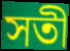
সতী